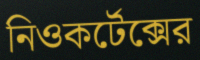
নিওকর্টেক্সের